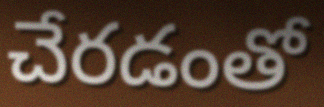
చేరడంతో